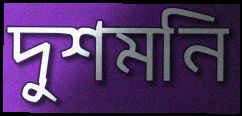
দুশমনি